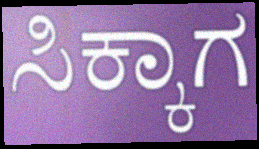
ಸಿಕ್ಕಾಗ